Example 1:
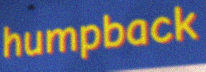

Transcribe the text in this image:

humpback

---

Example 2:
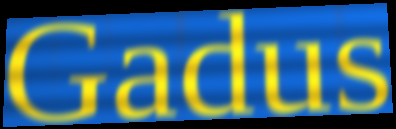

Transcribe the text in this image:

Gadus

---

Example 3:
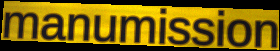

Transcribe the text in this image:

manumission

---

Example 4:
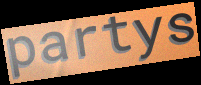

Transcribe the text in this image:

partys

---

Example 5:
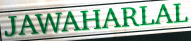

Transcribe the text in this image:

JAWAHARLAL